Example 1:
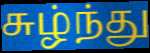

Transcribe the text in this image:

சுழ்ந்து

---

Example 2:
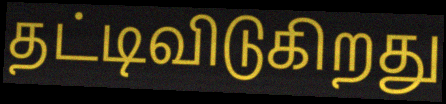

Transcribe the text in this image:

தட்டிவிடுகிறது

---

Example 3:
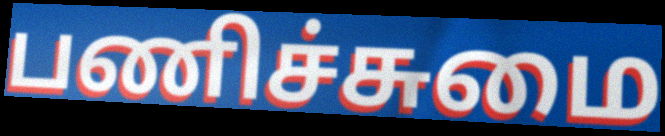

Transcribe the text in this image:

பணிச்சுமை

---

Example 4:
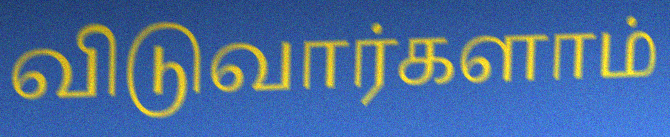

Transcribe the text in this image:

விடுவார்களாம்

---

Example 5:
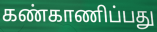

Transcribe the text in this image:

கண்காணிப்பது